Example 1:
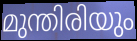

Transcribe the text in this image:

മുന്തിരിയും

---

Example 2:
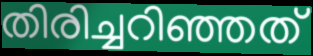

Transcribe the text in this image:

തിരിച്ചറിഞ്ഞത്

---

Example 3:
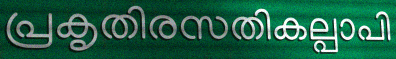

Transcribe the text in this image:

പ്രകൃതിരസതികല്പാപി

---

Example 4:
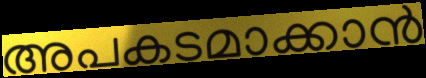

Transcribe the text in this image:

അപകടമാക്കാൻ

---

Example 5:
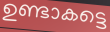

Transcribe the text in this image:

ഉണ്ടാകട്ടെ